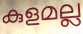
കുളമല്ല